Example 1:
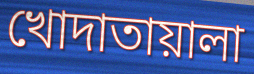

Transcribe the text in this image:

খোদাতায়ালা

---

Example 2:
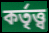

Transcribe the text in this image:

কর্তৃত্ত্ব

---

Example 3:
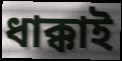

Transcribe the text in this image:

ধাক্কাই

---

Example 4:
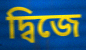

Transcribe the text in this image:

দ্বিজে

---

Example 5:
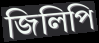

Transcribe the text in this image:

জিলিপি